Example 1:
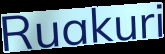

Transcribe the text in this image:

Ruakuri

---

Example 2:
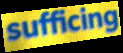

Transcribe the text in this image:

sufficing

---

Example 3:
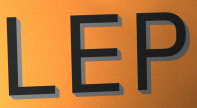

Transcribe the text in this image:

LEP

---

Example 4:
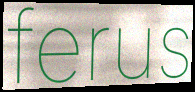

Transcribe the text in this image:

ferus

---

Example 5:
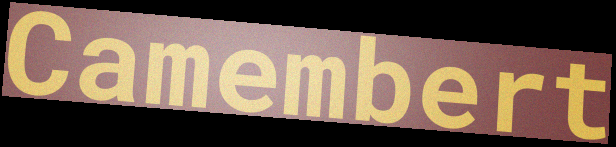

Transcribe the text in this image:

Camembert